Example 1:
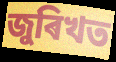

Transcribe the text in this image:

জুৰিখত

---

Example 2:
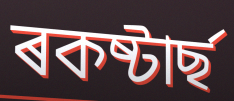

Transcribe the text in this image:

ৰকষ্টাৰ্ছ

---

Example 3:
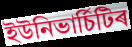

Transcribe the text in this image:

ইউনিভাৰ্চিটিৰ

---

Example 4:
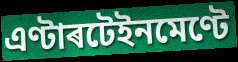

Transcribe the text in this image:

এণ্টাৰটেইনমেণ্টে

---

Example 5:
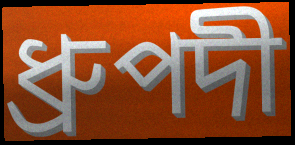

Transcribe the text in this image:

ধ্ৰুপদী